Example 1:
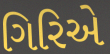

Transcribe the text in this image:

ગિરિએ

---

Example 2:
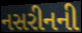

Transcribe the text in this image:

નસરીનની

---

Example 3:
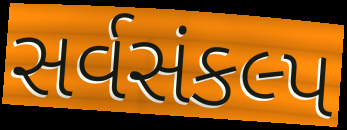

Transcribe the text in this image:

સર્વસંકલ્પ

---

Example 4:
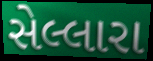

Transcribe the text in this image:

સેલ્લારા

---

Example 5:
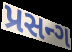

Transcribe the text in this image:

પ્રસન્ગ